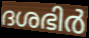
ദശഭിർ